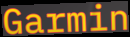
Garmin